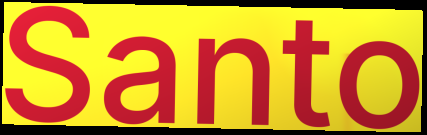
Santo